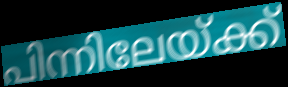
പിന്നിലേയ്ക്ക്